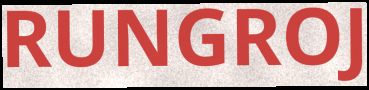
RUNGROJ